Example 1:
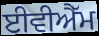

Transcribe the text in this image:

ਈਵੀਐੱਮ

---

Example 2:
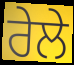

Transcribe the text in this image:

ਰੇਲੇ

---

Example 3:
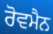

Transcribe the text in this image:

ਰੋਵਮੈਨ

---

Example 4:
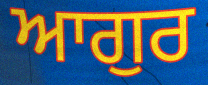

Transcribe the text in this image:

ਆਗੁਰ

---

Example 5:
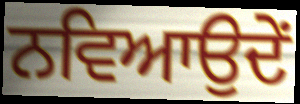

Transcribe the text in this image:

ਨਵਿਆਉਦੇਂ